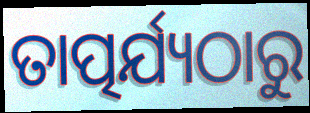
ତାତ୍ପର୍ଯ୍ୟଠାରୁ